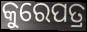
କୁରେପତ୍ର